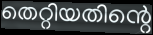
തെറ്റിയതിന്റെ